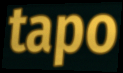
tapo